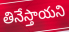
తినేస్తాయని